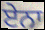
ਏਨਾ